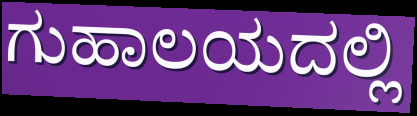
ಗುಹಾಲಯದಲ್ಲಿ